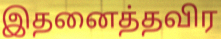
இதனைத்தவிர